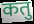
कतु